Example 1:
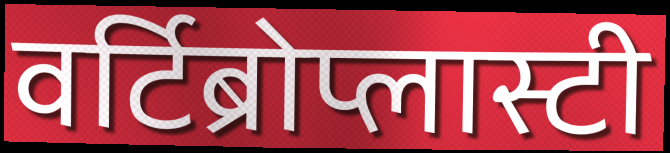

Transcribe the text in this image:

वर्टिब्रोप्लास्टी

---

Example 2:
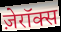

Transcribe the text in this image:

ज़ेरॉक्स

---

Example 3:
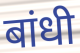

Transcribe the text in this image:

बांधी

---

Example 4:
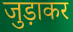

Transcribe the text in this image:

जुड़ाकर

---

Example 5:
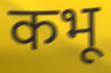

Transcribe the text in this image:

कभू